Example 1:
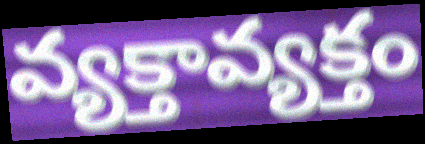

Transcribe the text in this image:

వ్యక్తావ్యక్తం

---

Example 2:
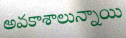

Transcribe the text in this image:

అవకాశాలున్నాయి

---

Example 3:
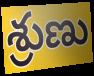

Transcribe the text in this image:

శ్రుణు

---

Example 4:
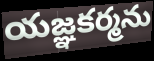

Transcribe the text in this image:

యజ్ఞకర్మను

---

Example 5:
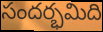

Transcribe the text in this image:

సందర్భమిది